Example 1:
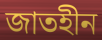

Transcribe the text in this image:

জাতহীন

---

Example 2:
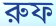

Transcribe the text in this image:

রুফ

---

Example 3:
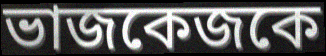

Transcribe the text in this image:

ভাজকেজকে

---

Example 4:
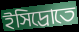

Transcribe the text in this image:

ইসিদ্রোতে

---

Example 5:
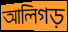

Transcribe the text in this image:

আলিগড়